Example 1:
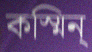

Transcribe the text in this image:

কস্মিন্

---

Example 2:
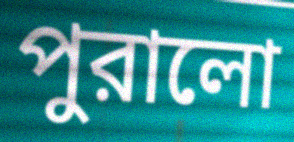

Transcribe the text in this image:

পুরালো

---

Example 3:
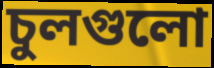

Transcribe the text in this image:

চুলগুলো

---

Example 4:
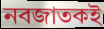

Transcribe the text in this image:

নবজাতকই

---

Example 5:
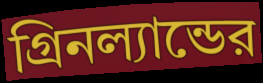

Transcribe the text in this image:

গ্রিনল্যান্ডের